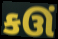
કઊં